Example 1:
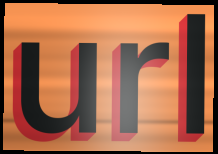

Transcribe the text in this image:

url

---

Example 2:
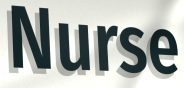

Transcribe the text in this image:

Nurse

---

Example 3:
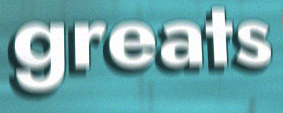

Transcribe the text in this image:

greats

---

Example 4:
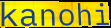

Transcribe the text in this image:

kanohi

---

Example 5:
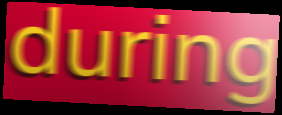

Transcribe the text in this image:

during